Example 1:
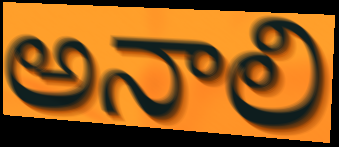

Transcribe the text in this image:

అనాలి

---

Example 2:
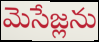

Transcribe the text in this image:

మెసేజ్లను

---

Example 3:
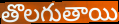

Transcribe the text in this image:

తొలగుతాయి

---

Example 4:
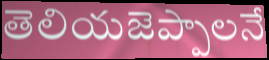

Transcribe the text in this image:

తెలియజెప్పాలనే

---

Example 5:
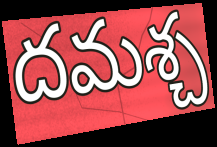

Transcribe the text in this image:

దమశ్చ